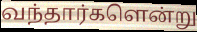
வந்தார்களென்று